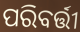
ପରିବର୍ତ୍ତୀ